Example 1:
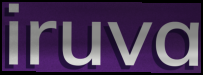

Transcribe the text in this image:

iruva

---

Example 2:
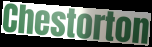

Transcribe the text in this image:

Chestorton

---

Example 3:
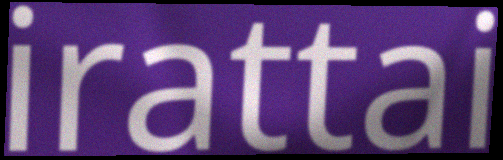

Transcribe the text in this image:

irattai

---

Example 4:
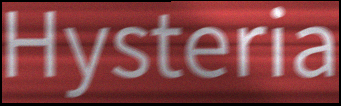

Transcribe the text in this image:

Hysteria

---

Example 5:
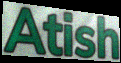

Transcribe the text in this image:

Atish